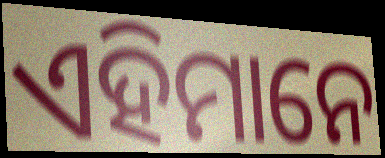
ଏହିମାନେ